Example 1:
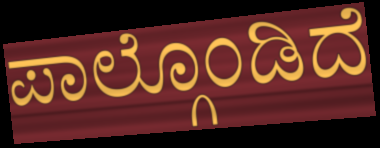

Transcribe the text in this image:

ಪಾಲ್ಗೊಂಡಿದೆ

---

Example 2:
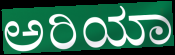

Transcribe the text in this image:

ಅರಿಯಾ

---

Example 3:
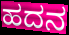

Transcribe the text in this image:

ಹದನ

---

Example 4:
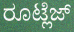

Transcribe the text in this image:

ರೂಟ್ಲೆಜ್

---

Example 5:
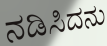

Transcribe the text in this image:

ನಡಿಸಿದನು